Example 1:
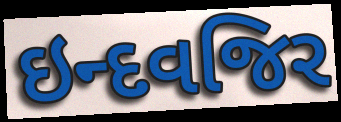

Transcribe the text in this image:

ઇન્દવજિર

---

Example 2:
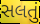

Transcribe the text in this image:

સલતું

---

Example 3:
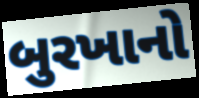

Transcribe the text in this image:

બુરખાનો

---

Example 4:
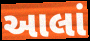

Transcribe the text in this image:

આલાં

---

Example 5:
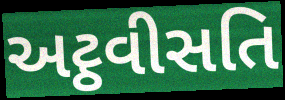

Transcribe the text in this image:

અટ્ઠવીસતિ